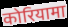
कोरियामा